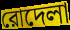
রোদেলা